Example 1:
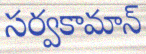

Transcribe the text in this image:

సర్వకామాన్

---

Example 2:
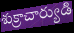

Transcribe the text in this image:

శుక్రాచార్యుడి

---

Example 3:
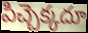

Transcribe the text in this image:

పిచ్చెక్కదూ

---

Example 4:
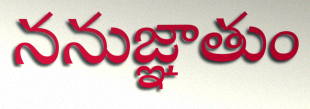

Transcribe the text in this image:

ననుజ్ఞాతుం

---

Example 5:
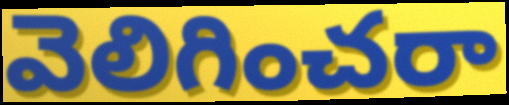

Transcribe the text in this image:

వెలిగించరా